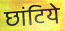
छांटिये